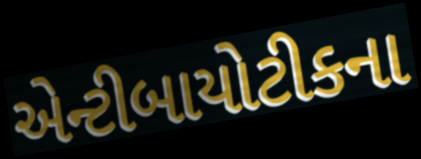
એન્ટીબાયોટીકના